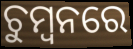
ଚୁମ୍ବନରେ